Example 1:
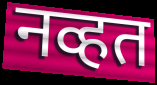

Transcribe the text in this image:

नव्हत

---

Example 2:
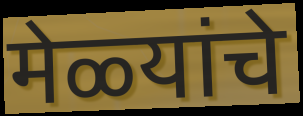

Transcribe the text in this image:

मेळ्यांचे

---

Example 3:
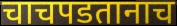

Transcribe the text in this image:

चाचपडतानाच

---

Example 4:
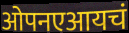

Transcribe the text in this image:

ओपनएआयचं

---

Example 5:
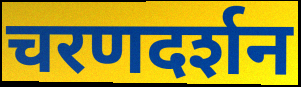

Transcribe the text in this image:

चरणदर्शन